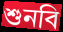
শুনবি